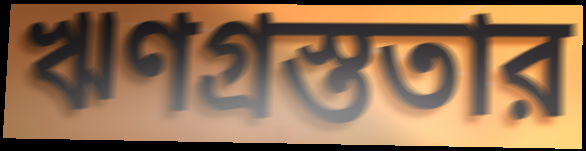
ঋণগ্রস্ততার